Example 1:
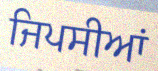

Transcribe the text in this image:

ਜਿਪਸੀਆਂ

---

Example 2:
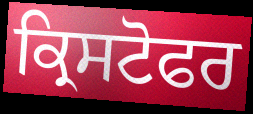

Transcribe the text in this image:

ਕ੍ਰਿਸਟੋਫਰ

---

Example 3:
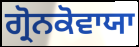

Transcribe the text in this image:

ਗ੍ਰੋਨਕੋਵਾਯਾ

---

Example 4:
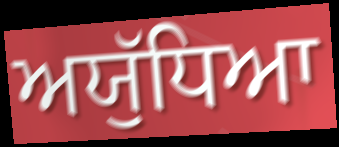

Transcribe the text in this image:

ਅਯੁੱਧਿਆ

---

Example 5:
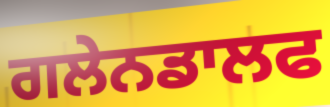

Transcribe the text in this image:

ਗਲੇਨਡਾਲਫ